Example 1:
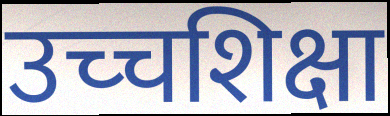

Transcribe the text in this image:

उच्‍चशिक्षा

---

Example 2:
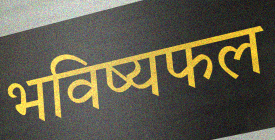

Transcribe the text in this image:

भविष्‍यफल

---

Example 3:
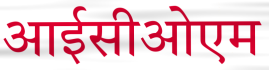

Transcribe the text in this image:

आईसीओएम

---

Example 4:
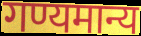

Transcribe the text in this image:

गण्यमान्य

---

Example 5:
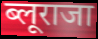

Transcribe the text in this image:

ब्लूराजा